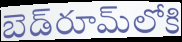
బెడ్‌రూమ్‌లోకి